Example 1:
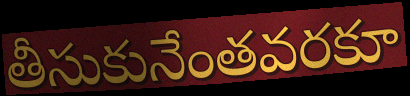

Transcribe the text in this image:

తీసుకునేంతవరకూ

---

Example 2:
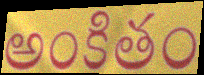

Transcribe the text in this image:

అంకితం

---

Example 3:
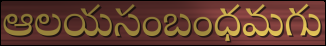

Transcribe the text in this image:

ఆలయసంబంధమగు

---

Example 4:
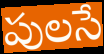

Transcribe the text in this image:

పులసే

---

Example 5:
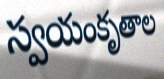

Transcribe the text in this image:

స్వయంకృతాల